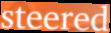
steered